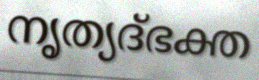
നൃത്യദ്ഭക്ത